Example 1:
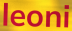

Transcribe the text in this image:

leoni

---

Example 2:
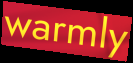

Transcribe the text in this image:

warmly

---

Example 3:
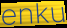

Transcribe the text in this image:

enku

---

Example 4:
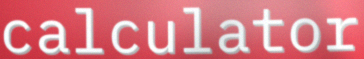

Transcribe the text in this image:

calculator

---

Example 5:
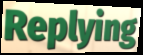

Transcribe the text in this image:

Replying